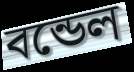
বন্ডেল